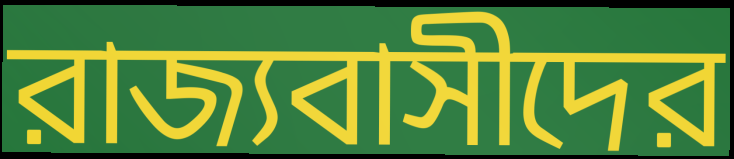
রাজ্যবাসীদের